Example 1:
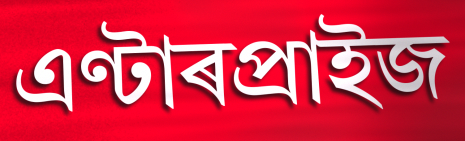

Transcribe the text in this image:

এণ্টাৰপ্ৰাইজ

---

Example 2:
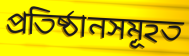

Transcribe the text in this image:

প্ৰতিষ্ঠানসমূহত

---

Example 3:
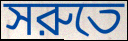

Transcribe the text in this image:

সৰুতে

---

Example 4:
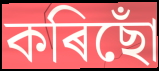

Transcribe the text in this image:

কৰিছোঁ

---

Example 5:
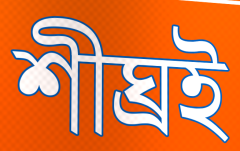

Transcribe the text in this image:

শীঘ্ৰই